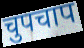
चुपचाप